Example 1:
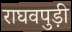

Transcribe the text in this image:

राघवपुड़ी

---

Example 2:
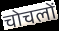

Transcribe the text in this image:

चोचलों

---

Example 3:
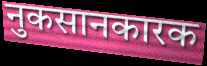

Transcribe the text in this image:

नुकसानकारक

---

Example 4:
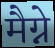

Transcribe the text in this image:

मैग्ने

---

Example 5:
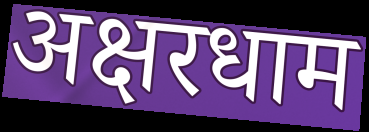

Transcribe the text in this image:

अक्षरधाम